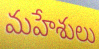
మహేశులు